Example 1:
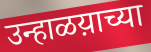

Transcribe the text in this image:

उन्हाळय़ाच्या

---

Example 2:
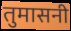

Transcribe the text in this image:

तुमासनी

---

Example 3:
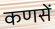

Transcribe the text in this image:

कणसें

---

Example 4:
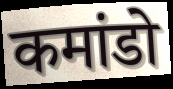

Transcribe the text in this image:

कमांडो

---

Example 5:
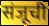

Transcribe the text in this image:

संजूची